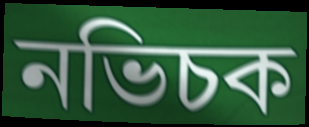
নভিচক